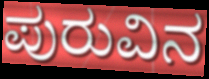
ಪುರುವಿನ